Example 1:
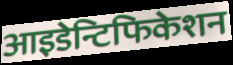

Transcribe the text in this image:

आइडेन्टिफिकेशन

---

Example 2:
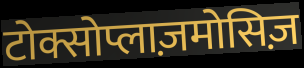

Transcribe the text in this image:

टोक्सोप्लाज़मोसिज़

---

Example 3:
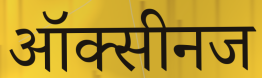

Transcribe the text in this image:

ऑक्सीनज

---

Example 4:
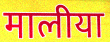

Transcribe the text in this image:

मालीया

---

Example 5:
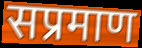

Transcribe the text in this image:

सप्रमाण